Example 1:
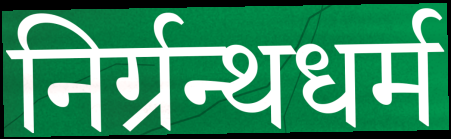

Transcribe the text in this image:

निर्ग्रन्थधर्म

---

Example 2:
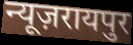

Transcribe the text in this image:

न्यूज़रायपुर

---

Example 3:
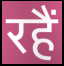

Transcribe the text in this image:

रहैं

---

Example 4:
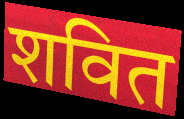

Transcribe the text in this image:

शवित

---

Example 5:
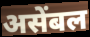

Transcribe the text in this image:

असेंबल